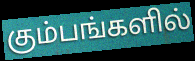
கும்பங்களில்